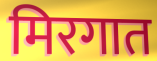
मिरगात